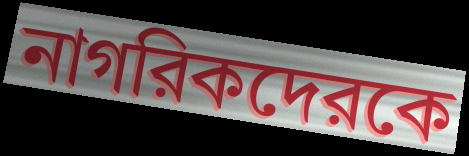
নাগরিকদেরকে